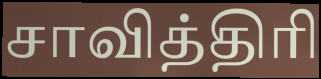
சாவித்திரி